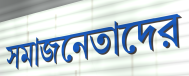
সমাজনেতাদের